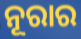
ନୂରାର